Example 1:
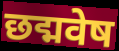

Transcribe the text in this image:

छद्मवेष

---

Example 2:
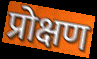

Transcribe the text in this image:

प्रोक्षण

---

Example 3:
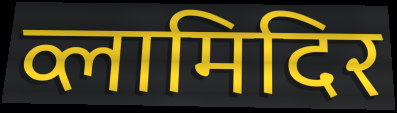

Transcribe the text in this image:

व्लामिदिर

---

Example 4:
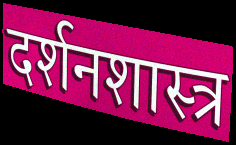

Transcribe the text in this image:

दर्शनशास्त्र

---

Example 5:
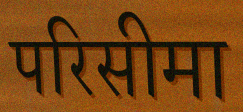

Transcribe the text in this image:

परिसीमा